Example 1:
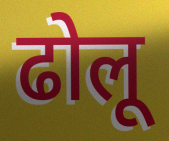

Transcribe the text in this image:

ढोलू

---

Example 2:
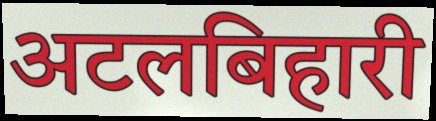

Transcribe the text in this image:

अटलबिहारी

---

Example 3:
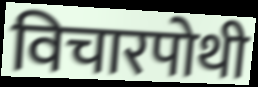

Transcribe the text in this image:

विचारपोथी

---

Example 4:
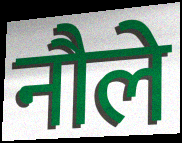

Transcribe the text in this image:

नौले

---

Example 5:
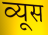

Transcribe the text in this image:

व्यूस